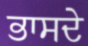
ਭਾਸਦੇ